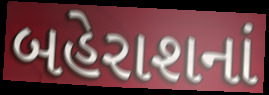
બહેરાશનાં